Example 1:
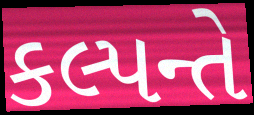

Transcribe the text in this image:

કલ્પન્તે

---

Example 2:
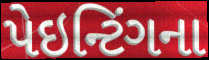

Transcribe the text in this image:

પેઇન્ટિંગના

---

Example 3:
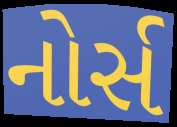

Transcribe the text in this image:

નોર્સ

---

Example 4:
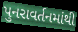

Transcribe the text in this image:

પુનરાવર્તનમાંથી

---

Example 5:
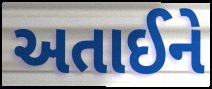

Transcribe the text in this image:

અતાઈને